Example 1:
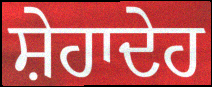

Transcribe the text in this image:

ਸ਼ੇਹਾਦੇਹ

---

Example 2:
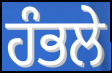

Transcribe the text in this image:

ਹੰਭਲੇ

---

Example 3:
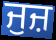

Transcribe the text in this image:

ਜੁਜ਼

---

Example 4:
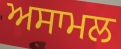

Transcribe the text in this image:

ਅਸਾਮਲ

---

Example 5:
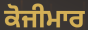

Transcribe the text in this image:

ਕੋਜੀਮਾਰ